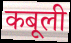
कबूली